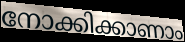
നോക്കിക്കാണാം